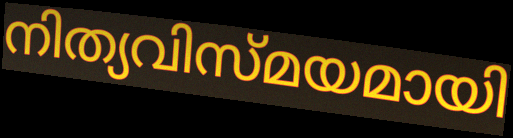
നിത്യവിസ്മയമായി